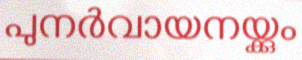
പുനർവായനയ്ക്കും